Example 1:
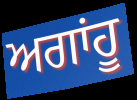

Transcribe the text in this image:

ਅਗਾਂਹੂ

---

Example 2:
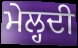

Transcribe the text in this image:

ਮੇਲ੍ਹਦੀ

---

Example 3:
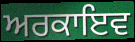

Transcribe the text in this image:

ਅਰਕਾਇਵ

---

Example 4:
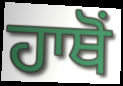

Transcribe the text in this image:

ਹਾਥੋਂ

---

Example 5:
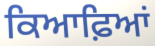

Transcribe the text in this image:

ਕਿਆਫ਼ਿਆਂ